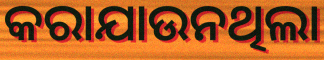
କରାଯାଉନଥିଲା